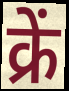
क्रें